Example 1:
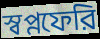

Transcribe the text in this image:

স্বপ্নফেরি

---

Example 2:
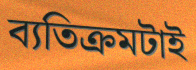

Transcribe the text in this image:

ব্যতিক্রমটাই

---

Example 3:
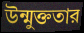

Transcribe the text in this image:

উন্মুক্ততার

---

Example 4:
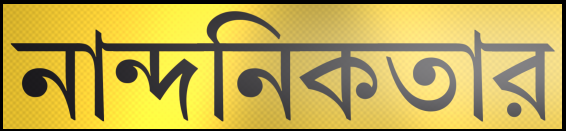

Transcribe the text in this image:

নান্দনিকতার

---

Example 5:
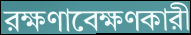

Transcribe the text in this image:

রক্ষণাবেক্ষণকারী